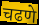
चढणे